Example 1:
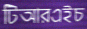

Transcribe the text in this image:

টিআরএইচ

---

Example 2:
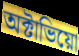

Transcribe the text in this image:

অক্টাভিয়ো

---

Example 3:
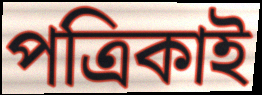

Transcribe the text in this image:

পত্রিকাই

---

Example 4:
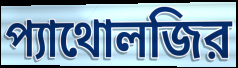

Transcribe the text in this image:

প্যাথোলজির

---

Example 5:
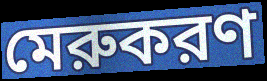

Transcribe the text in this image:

মেরুকরণ